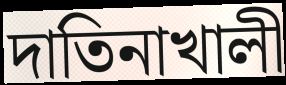
দাতিনাখালী